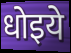
धोइये